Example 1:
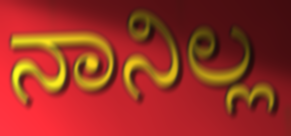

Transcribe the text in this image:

ನಾನಿಲ್ಲ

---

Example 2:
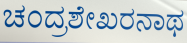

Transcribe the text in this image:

ಚಂದ್ರಶೇಖರನಾಥ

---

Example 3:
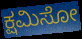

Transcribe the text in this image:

ಕ್ಷಮಿಸೋ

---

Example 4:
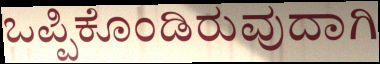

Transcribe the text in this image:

ಒಪ್ಪಿಕೊಂಡಿರುವುದಾಗಿ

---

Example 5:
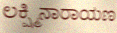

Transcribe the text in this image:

ಲಕ್ಷ್ಮಿನಾರಾಯಣ